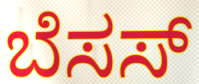
ಬೆಸಸ್